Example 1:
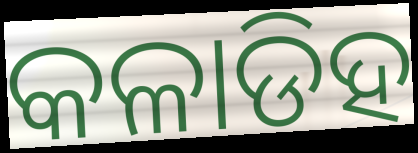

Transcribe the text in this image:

କଳାଡିହ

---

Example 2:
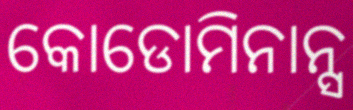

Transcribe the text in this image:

କୋଡୋମିନାନ୍ସ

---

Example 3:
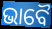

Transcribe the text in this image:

ଭାବୈ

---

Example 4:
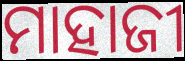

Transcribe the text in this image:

ମାହାଜୀ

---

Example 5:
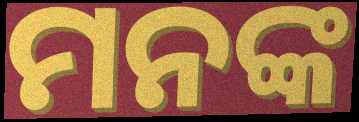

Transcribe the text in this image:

ମନଙ୍କ